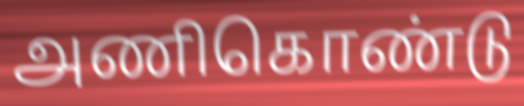
அணிகொண்டு